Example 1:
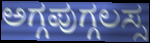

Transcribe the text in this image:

ಅಗ್ಗಪುಗ್ಗಲಸ್ಸ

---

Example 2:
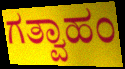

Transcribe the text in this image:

ಗತ್ವಾಹಂ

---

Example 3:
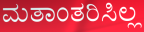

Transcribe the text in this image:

ಮತಾಂತರಿಸಿಲ್ಲ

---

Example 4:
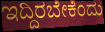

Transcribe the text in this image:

ಇದ್ದಿರಬೇಕೆಂದು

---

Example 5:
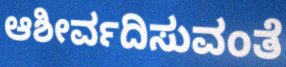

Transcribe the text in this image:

ಆಶೀರ್ವದಿಸುವಂತೆ